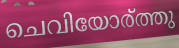
ചെവിയോര്ത്തു